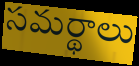
సమర్థాలు